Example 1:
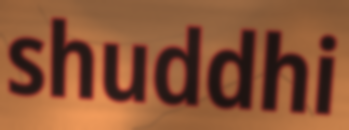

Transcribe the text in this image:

shuddhi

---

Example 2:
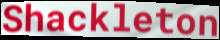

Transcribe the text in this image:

Shackleton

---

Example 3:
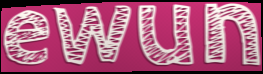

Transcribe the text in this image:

ewun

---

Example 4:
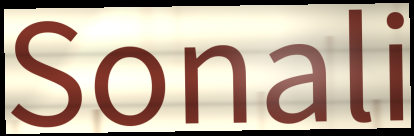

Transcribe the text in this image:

Sonali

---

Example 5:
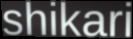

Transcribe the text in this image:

shikari